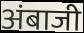
अंबाजी